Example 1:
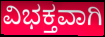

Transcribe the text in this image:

ವಿಭಕ್ತವಾಗಿ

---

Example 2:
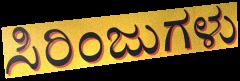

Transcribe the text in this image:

ಸಿರಿಂಜುಗಳು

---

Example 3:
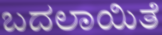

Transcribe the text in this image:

ಬದಲಾಯಿತೆ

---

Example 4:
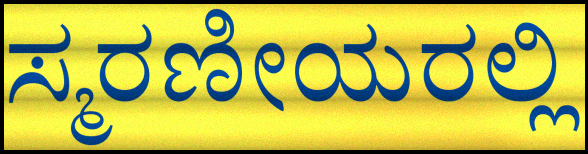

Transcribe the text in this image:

ಸ್ಮರಣೀಯರಲ್ಲಿ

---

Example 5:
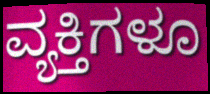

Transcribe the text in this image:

ವ್ಯಕ್ತಿಗಳೂ